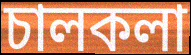
চালকলা